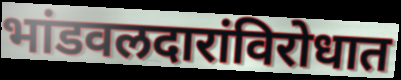
भांडवलदारांविरोधात